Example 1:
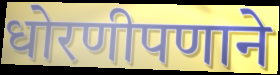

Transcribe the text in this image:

धोरणीपणाने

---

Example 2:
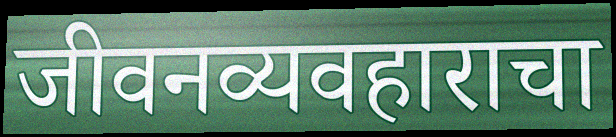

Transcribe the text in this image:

जीवनव्यवहाराचा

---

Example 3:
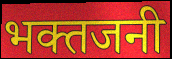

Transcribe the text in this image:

भक्तजनी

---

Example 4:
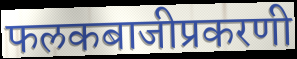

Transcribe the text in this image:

फलकबाजीप्रकरणी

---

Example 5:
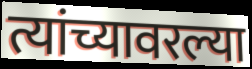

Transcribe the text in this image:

त्यांच्यावरल्या